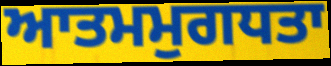
ਆਤਮਮੁਗਧਤਾ